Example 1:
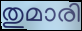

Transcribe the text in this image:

തുമാരി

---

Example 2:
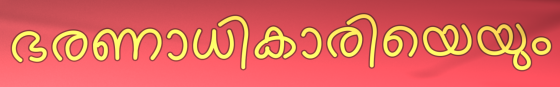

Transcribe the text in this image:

ഭരണാധികാരിയെയും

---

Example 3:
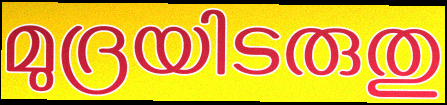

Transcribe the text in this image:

മുദ്രയിടരുതു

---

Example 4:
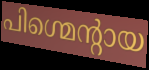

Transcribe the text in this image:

പിഗ്മെന്റായ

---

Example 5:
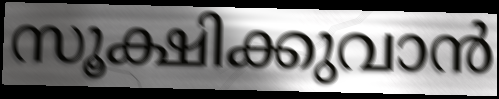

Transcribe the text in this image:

സൂക്ഷിക്കുവാൻ